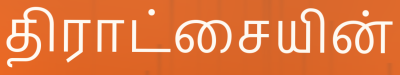
திராட்சையின்